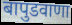
बापुडवाणा